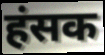
हंसक